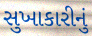
સુખાકારીનું